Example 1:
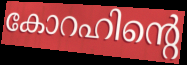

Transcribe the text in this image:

കോറഹിന്റെ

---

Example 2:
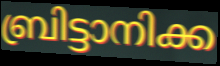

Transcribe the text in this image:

ബ്രിട്ടാനിക്ക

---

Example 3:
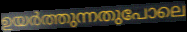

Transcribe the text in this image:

ഉയർത്തുന്നതുപോലെ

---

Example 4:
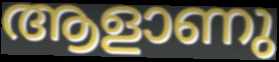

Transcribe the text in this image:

ആളാണു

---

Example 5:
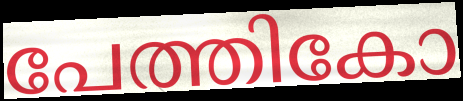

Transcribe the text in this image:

പേത്തികോ